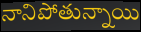
నానిపోతున్నాయి